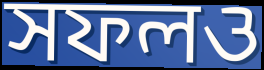
সফলও